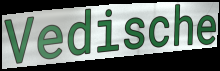
Vedische